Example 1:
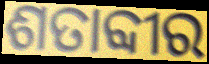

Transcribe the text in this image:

ଶତାବ୍ଦୀର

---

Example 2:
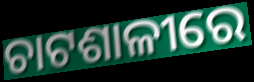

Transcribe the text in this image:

ଚାଟଶାଳୀରେ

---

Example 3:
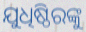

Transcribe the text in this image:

ଯୁଧିଷ୍ଠିରଙ୍କୁ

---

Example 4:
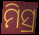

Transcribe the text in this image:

ମିସ୍ର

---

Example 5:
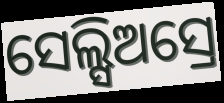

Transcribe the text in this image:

ସେଲ୍ସିଅସ୍ରେ